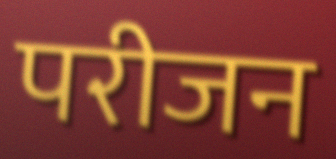
परीजन